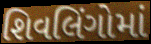
શિવલિંગોમાં